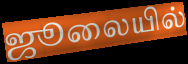
ஜூலையில்